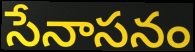
సేనాసనం